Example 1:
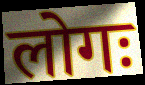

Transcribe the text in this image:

लोगः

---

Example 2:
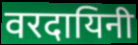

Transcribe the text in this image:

वरदायिनी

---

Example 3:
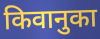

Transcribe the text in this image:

किवानुका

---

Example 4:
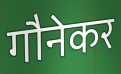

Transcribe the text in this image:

गौनेकर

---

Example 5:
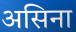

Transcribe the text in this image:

असिना